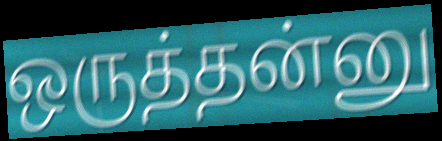
ஒருத்தன்னு